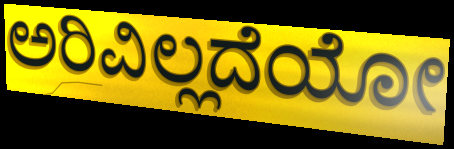
ಅರಿವಿಲ್ಲದೆಯೋ